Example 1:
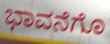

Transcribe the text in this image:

ಭಾವನೆಗೊ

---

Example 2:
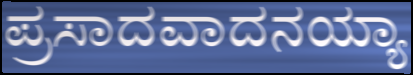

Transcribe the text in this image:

ಪ್ರಸಾದವಾದನಯ್ಯಾ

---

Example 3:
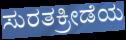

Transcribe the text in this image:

ಸುರತಕ್ರೀಡೆಯ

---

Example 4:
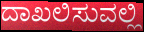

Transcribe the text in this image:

ದಾಖಲಿಸುವಲ್ಲಿ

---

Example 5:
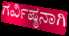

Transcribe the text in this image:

ಗರ್ವಿಷ್ಠನಾಗಿ